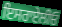
ਇਸਰਾਏਲੀਓ